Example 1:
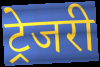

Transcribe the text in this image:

ट्रेजरी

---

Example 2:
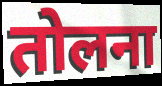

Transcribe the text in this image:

तोलना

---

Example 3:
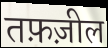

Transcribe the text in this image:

तफ़ज़ील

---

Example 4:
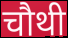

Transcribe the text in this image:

चौथी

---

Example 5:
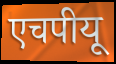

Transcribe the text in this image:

एचपीयू